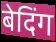
बेदिंग